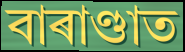
বাৰাণ্ডাত